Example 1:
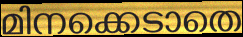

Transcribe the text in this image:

മിനക്കെടാതെ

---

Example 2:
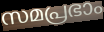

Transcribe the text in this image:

സമപ്രഭാം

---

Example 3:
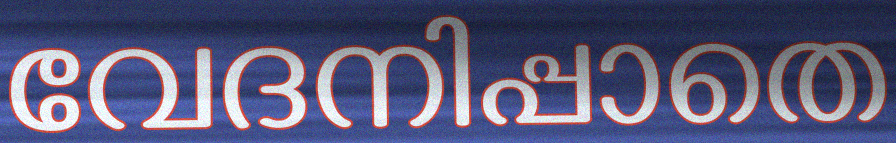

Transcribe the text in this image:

വേദനിപ്പാതെ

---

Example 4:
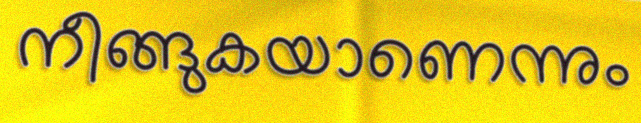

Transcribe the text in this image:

നീങ്ങുകയാണെന്നും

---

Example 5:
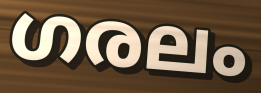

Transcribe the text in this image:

ഗരലം